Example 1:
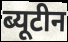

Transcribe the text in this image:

ब्यूटीन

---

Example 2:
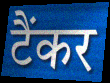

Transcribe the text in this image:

टैंकर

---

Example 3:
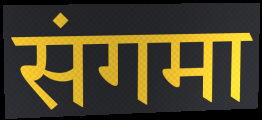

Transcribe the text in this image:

संगमा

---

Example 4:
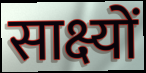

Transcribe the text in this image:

साक्ष्यों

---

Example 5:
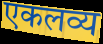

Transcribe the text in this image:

एकलव्य